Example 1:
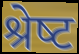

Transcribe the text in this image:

श्रेष्‍ट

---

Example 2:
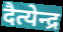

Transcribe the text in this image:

दैत्येन्द्र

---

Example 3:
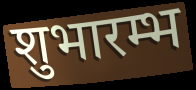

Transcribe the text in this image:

शुभारम्भ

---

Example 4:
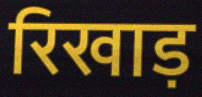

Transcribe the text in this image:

रिखाड़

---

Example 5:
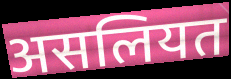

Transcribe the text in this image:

असलियत